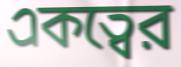
একত্বের